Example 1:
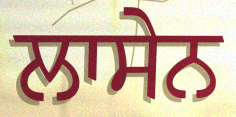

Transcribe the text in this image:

ਲਾਸੇਨ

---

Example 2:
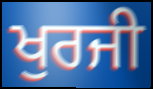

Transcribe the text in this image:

ਖੁਰਜੀ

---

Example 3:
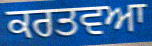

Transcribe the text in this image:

ਕਰਤਵਆ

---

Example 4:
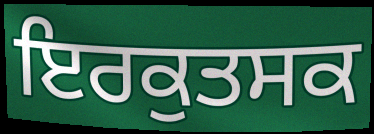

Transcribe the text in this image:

ਇਰਕੁਤਸਕ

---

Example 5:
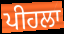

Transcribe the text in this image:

ਪੀਹਲਾ